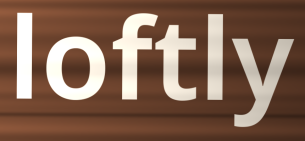
loftly